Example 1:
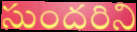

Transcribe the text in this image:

సుందరిని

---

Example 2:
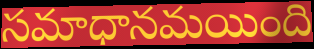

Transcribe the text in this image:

సమాధానమయింది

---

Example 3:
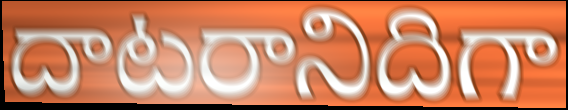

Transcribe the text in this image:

దాటరానిదిగా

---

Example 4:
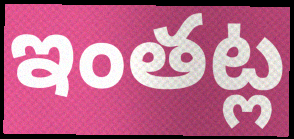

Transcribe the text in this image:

ఇంతట్ల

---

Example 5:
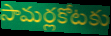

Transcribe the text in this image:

సామర్లకోటకు